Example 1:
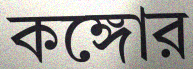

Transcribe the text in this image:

কঙ্গোর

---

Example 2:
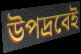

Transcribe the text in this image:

উপদ্রবেই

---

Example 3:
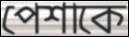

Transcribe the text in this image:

পেশাকে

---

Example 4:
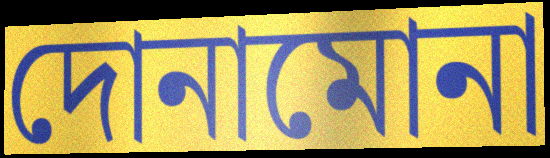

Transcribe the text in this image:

দোনামোনা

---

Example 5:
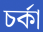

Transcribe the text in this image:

চর্কা